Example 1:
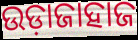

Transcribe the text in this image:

ଉଡ଼ାଜାହାଜ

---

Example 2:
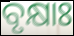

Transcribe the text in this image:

ବୃକ୍ଷାଃ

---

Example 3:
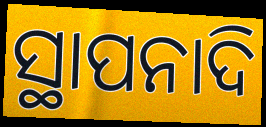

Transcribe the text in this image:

ସ୍ଥାପନାଦି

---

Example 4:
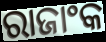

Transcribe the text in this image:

ରାଜାଂକ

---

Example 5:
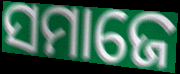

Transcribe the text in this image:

ସମାଜେ